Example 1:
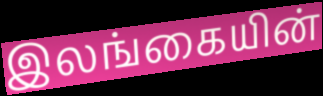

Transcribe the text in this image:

இலங்கையின்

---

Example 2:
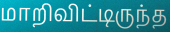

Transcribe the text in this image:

மாறிவிட்டிருந்த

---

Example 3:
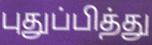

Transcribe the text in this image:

புதுப்பித்து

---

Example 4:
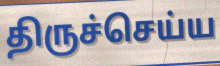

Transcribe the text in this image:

திருச்செய்ய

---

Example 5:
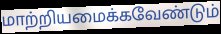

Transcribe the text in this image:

மாற்றியமைக்கவேண்டும்